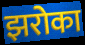
झरोका